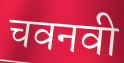
चवनवी